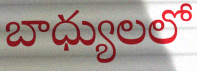
బాధ్యులలో